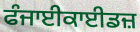
ਫੰਜਾਈਕਾਈਡਜ਼